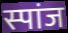
स्पांज